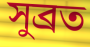
সুব্ৰত